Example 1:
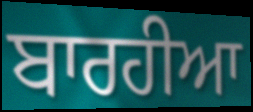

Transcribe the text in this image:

ਬਾਰਹੀਆ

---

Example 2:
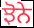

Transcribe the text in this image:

ਝੋਨੇ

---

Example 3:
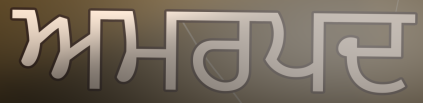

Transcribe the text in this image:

ਅਮਰਪਦ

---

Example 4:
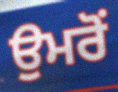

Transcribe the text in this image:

ਉਮਰੋਂ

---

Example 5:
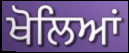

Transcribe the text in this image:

ਖੋਲਿਆਂ